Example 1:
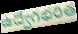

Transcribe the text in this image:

ఉద్వేగభరిత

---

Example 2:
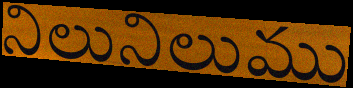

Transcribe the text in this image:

నిలునిలుము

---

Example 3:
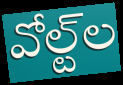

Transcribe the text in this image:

వోల్ట్‌ల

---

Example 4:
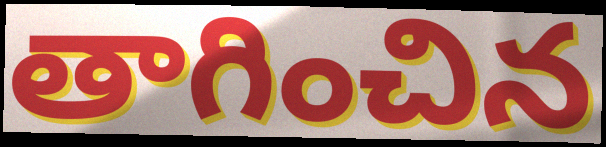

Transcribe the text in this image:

తాగించిన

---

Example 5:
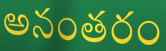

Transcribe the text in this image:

అనంతరం